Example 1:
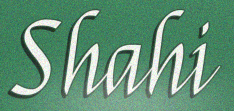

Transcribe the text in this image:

Shahi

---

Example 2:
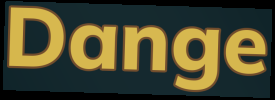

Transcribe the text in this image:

Dange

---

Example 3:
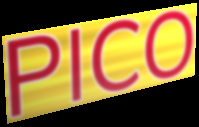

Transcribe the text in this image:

PICO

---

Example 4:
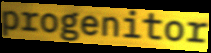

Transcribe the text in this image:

progenitor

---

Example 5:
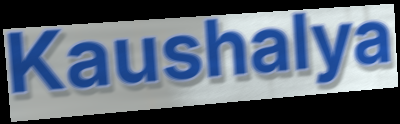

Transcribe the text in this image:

Kaushalya